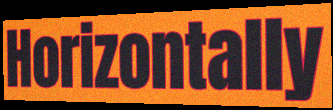
Horizontally